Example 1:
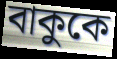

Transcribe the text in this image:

বাকুকে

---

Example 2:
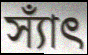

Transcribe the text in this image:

স্যাঁৎ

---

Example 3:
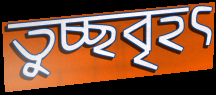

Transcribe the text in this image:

তুচ্ছবৃহৎ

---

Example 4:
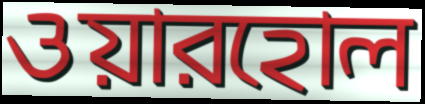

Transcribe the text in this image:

ওয়ারহোল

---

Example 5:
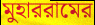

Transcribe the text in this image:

মুহাররামের